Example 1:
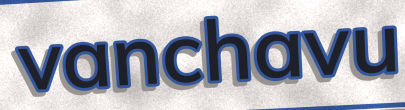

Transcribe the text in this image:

vanchavu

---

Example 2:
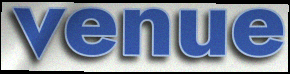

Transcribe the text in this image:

venue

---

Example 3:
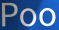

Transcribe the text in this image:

Poo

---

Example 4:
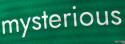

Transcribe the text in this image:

mysterious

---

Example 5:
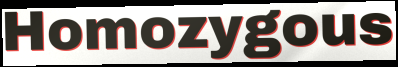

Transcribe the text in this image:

Homozygous